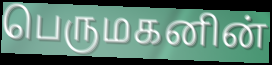
பெருமகனின்